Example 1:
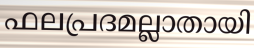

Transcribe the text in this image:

ഫലപ്രദമല്ലാതായി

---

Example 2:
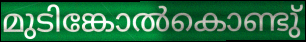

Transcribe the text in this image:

മുടിങ്കോൽകൊണ്ടു്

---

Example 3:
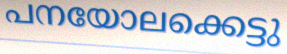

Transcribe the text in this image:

പനയോലക്കെട്ടു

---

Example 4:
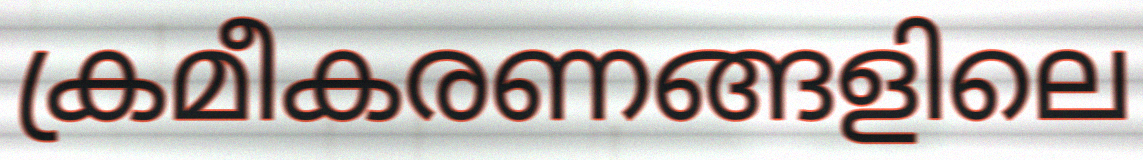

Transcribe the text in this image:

ക്രമീകരണങ്ങളിലെ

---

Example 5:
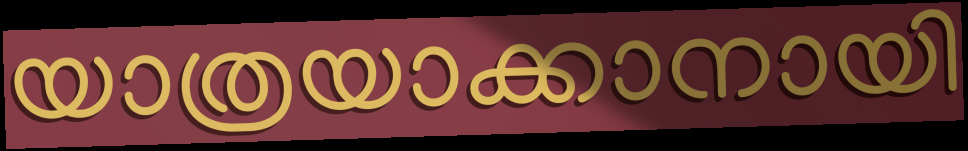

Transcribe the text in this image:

യാത്രയാക്കാനായി